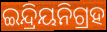
ଇନ୍ଦ୍ରିୟନିଗ୍ରହ